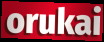
orukai